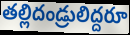
తల్లిదండ్రులిద్దరూ